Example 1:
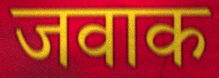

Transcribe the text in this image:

जवाक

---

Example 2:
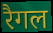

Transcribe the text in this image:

रैगल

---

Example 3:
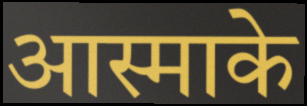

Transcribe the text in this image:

आस्माके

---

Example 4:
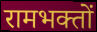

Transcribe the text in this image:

रामभक्तों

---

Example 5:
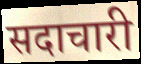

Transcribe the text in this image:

सदाचारी